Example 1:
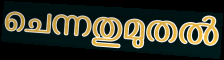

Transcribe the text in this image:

ചെന്നതുമുതൽ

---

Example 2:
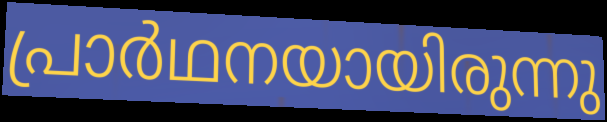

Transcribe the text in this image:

പ്രാർഥനയായിരുന്നു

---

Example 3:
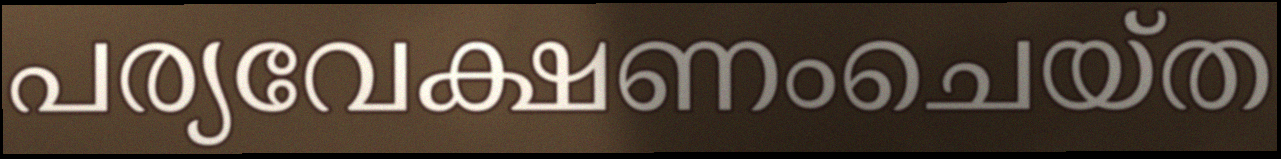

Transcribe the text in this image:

പര്യവേക്ഷണംചെയ്ത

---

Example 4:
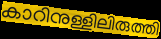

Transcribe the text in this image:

കാറിനുള്ളിലിരുത്തി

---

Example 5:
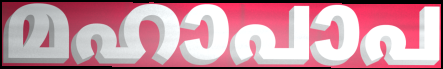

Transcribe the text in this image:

മഹാപാപ